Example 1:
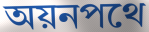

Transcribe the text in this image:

অয়নপথে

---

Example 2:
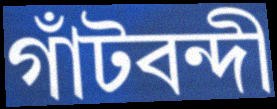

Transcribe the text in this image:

গাঁটবন্দী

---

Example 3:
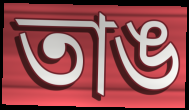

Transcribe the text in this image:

তাঙ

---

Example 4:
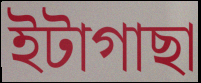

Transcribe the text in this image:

ইটাগাছা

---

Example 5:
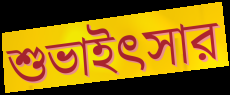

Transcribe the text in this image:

শুভাইৎসার